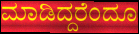
ಮಾಡಿದ್ದರೆಂದೂ